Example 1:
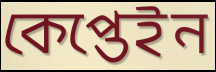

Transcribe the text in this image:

কেপ্তেইন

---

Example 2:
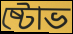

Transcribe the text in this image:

ষ্টোভ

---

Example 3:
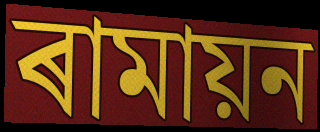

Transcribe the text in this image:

ৰামায়ন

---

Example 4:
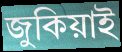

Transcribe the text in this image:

জুকিয়াই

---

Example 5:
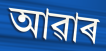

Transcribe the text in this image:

আৱাৰ